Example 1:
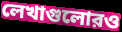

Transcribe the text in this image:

লেখাগুলোরও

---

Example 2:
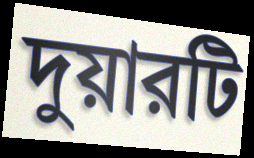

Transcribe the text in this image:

দুয়ারটি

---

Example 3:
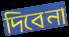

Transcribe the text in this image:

দিবেনা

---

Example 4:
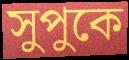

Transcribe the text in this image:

সুপুকে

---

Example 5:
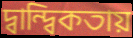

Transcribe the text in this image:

দ্বান্দ্বিকতায়